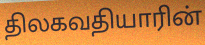
திலகவதியாரின்